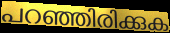
പറഞ്ഞിരിക്കുക